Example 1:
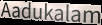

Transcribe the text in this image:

Aadukalam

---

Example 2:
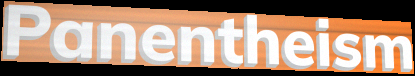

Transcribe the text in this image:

Panentheism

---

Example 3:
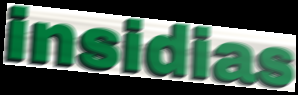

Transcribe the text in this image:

insidias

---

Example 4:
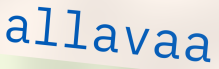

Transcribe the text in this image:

allavaa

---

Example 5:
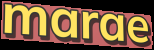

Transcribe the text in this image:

marae